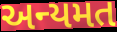
અન્યમત